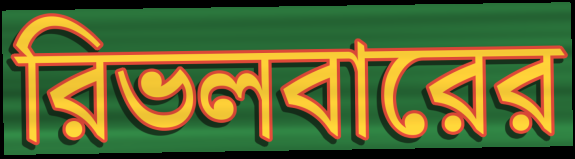
রিভলবারের